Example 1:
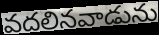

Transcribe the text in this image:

వదలినవాడును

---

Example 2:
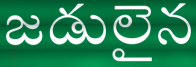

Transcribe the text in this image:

జడులైన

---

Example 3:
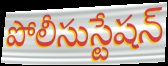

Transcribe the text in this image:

పోలీసుస్టేషన్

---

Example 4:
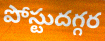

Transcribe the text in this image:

పోస్టుదగ్గర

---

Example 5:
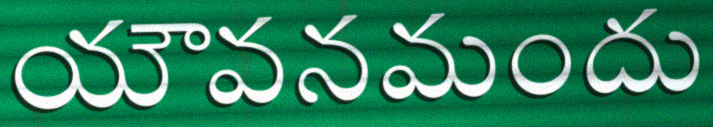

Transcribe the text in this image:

యౌవనమందు